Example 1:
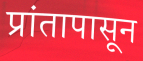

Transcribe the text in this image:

प्रांतापासून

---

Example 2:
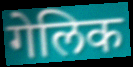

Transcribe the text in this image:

गेलिक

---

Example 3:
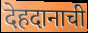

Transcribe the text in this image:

देहदानाची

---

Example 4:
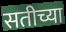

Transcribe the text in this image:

सतीच्या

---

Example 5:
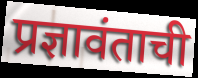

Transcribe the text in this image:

प्रज्ञावंताची